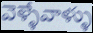
వెళ్ళేవాళ్ళు